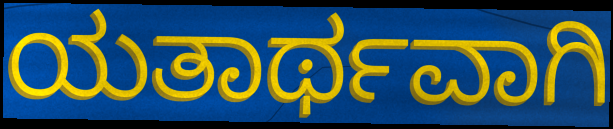
ಯತಾರ್ಥವಾಗಿ